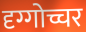
दृग्गोच्चर